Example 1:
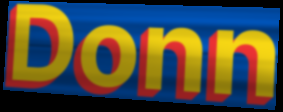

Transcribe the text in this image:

Donn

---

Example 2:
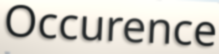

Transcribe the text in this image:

Occurence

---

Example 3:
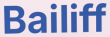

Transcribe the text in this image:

Bailiff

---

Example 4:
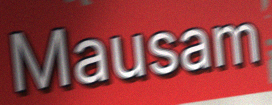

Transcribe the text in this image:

Mausam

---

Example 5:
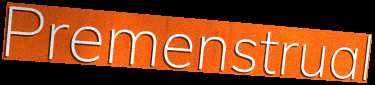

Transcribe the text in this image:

Premenstrual